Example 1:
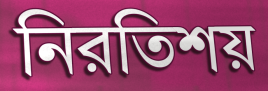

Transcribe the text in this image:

নিরতিশয়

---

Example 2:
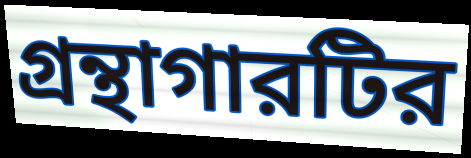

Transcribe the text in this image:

গ্রন্থাগারটির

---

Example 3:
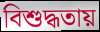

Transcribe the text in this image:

বিশুদ্ধতায়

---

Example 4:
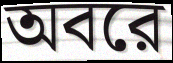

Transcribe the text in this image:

অবরে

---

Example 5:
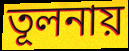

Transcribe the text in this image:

তূলনায়